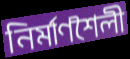
নিৰ্মাণশৈলী